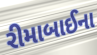
રીમાબાઈના